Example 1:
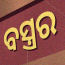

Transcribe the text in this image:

ବସ୍ତ୍ରର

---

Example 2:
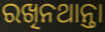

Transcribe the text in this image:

ରଖିନଥାନ୍ତା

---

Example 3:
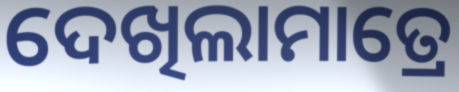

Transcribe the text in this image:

ଦେଖିଲାମାତ୍ରେ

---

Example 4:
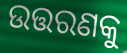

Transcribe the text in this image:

ଉତ୍ତରଣକୁ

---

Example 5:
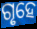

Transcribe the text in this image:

ଗୃହେ